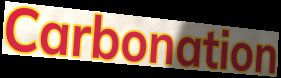
Carbonation